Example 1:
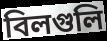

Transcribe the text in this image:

বিলগুলি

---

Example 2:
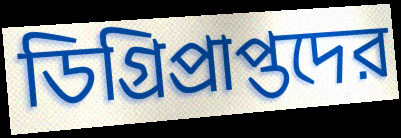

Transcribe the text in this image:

ডিগ্রিপ্রাপ্তদের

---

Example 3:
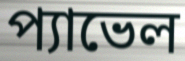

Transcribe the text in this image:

প্যাভেল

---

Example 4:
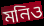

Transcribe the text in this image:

মনিও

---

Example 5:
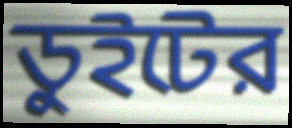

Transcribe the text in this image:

ডুইটের